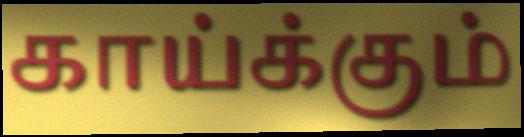
காய்க்கும்